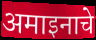
अमाइनाचे